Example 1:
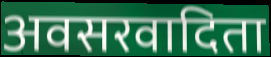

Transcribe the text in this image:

अवसरवादिता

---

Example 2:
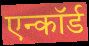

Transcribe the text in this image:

एन्कॉर्ड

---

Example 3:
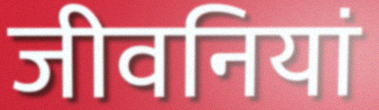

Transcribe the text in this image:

जीवनियां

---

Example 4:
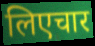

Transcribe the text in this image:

लिएचार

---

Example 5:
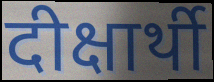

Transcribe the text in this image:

दीक्षार्थी